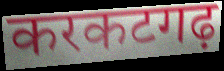
करकटगढ़